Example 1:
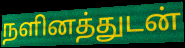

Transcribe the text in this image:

நளினத்துடன்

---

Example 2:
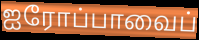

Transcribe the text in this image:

ஐரோப்பாவைப்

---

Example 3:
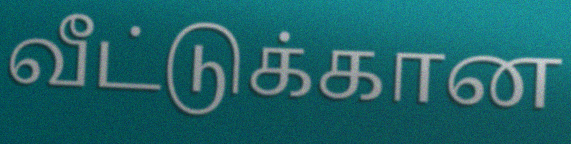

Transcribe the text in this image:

வீட்டுக்கான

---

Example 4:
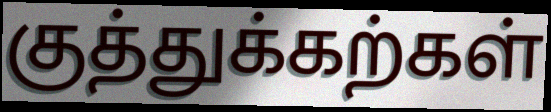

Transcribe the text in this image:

குத்துக்கற்கள்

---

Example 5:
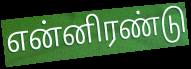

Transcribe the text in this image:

என்னிரண்டு